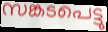
സങ്കടപെട്ടു